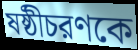
ষষ্ঠীচরণকে